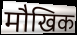
मौखिक